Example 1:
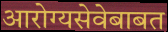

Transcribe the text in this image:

आरोग्यसेवेबाबत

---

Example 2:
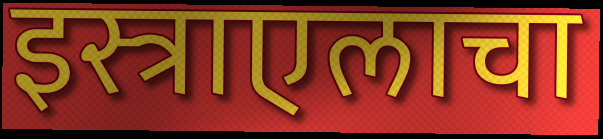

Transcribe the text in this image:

इस्त्राएलाचा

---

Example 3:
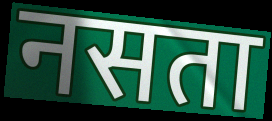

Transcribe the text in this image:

नसता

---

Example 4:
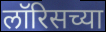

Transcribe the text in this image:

लॉरिसच्या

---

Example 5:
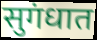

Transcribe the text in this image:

सुगंधात